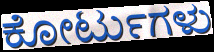
ಕೋರ್ಟುಗಳು